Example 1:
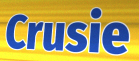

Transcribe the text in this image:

Crusie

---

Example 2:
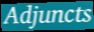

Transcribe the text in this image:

Adjuncts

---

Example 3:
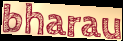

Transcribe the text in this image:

bharau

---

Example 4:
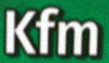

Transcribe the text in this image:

Kfm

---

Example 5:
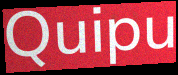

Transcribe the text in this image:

Quipu